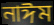
নাঈম